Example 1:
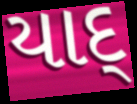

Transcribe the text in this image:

યાદ્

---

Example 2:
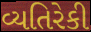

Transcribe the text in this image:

વ્યતિરેકી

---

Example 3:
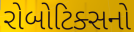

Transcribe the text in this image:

રોબોટિક્સનો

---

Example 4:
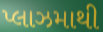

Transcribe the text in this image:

પ્લાઝમાથી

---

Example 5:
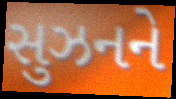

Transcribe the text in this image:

સુઝનને